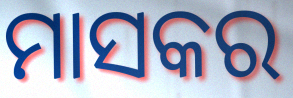
ମାସକର